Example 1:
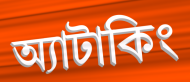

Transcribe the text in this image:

অ্যাটাকিং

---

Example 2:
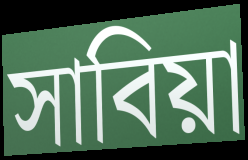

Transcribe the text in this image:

সাবিয়া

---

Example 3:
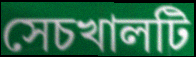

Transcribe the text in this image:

সেচখালটি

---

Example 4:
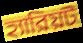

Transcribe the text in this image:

হ্যারিয়ট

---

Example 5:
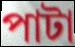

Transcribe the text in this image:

পাটা